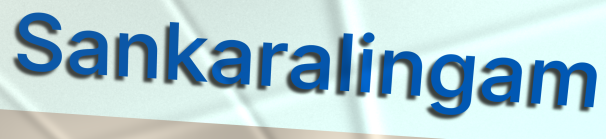
Sankaralingam